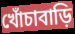
খোঁচাবাড়ি